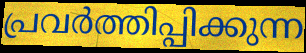
പ്രവർത്തിപ്പിക്കുന്ന